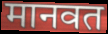
मानवत